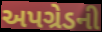
અપગ્રેડની